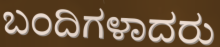
ಬಂದಿಗಳಾದರು